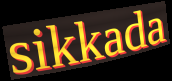
sikkada